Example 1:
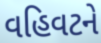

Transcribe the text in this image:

વહિવટને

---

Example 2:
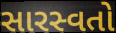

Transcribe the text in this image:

સારસ્વતો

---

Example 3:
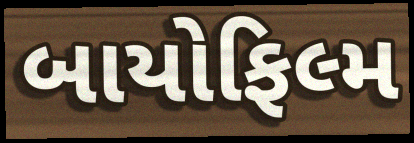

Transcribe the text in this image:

બાયોફિલ્મ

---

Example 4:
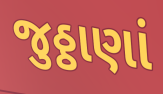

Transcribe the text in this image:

જુઠ્ઠાણાં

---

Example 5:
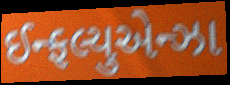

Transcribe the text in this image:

ઈન્ફલ્યુએન્ઝા